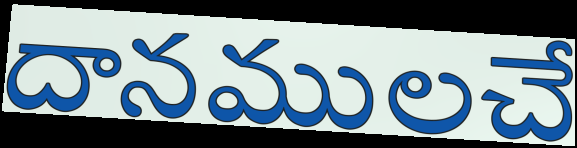
దానములచే